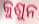
କୁଶୁନ